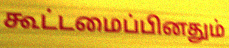
கூட்டமைப்பினதும்